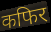
कफिर